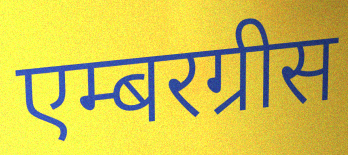
एम्बरग्रीस